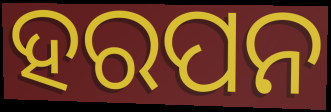
ହରପନ